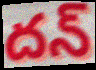
దన్